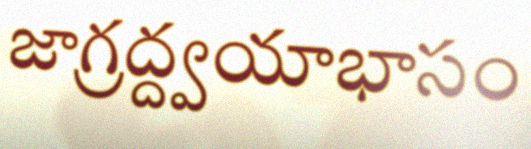
జాగ్రద్ద్వయాభాసం